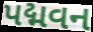
પદ્મવન